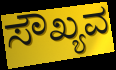
ಸೌಖ್ಯವ